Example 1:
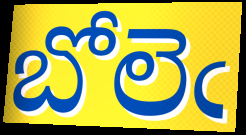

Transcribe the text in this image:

బోలెఁ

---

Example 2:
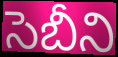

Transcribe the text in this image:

సెబీని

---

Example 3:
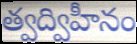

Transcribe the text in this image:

త్వద్విహీనం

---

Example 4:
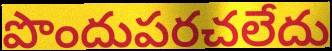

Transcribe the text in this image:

పొందుపరచలేదు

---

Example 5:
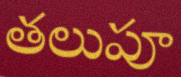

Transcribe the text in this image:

తలుపూ